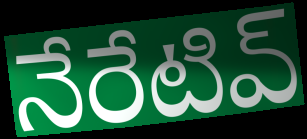
నేరేటివ్